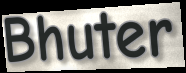
Bhuter